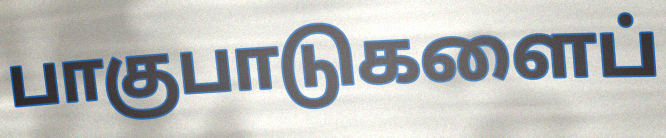
பாகுபாடுகளைப்